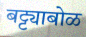
बट्ट्याबोळ